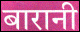
बारानी